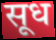
सूध